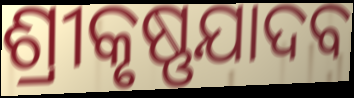
ଶ୍ରୀକୃଷ୍ଣଯାଦବ